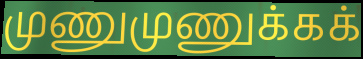
முணுமுணுக்கக்